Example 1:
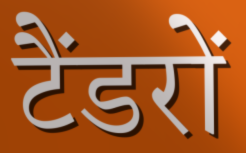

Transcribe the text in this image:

टैंडरों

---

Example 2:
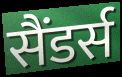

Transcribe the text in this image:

सैंडर्स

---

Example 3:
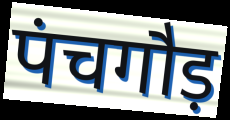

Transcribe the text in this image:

पंचगौड़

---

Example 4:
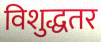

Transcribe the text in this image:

विशुद्धतर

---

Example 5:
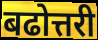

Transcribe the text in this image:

बढोत्तरी